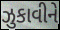
ઝુકાવીને